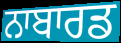
ਨਾਬਾਰਡ